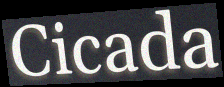
Cicada